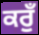
ਕਰੁਁ